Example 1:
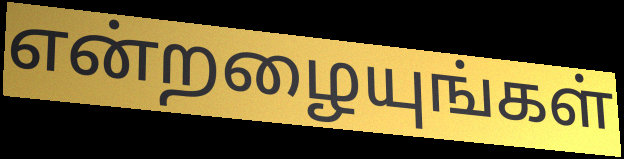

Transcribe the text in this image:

என்றழையுங்கள்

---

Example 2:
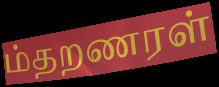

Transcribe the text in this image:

ம்தறணரள்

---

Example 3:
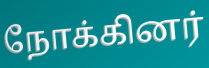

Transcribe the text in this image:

நோக்கினர்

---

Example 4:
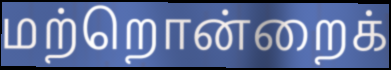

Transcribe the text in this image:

மற்றொன்றைக்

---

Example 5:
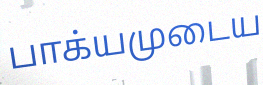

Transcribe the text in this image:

பாக்யமுடைய